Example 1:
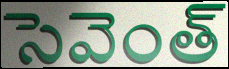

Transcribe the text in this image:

సెవెంత్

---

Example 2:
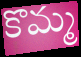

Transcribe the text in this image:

కొమ్మ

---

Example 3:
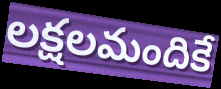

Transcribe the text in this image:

లక్షలమందికే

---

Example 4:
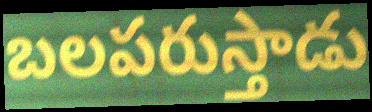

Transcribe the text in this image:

బలపరుస్తాడు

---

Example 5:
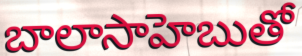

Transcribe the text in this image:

బాలాసాహెబుతో